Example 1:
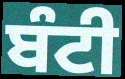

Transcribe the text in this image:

ਬੰਟੀ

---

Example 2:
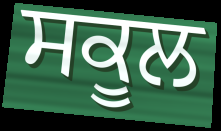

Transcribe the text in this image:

ਸਕੂਲ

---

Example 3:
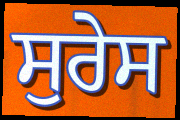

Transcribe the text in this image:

ਸੁਰੇਸ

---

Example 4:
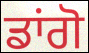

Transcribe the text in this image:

ਡਾਂਗੋ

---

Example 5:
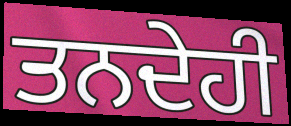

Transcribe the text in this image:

ਤਨਦੇਹੀ